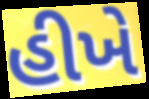
હીખે